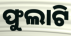
ଫୁଲାଟି